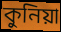
কুনিয়া